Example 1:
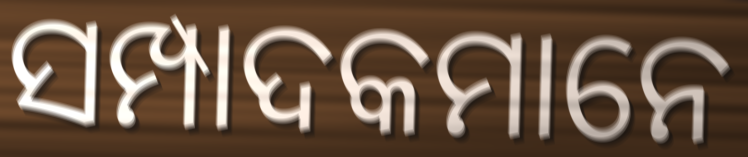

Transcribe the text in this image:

ସମ୍ପାଦକମାନେ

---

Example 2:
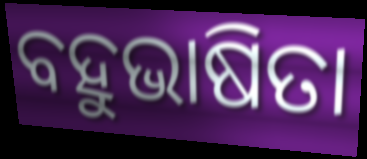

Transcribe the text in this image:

ବହୁଭାଷିତା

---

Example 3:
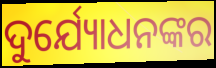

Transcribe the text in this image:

ଦୁର୍ଯ୍ୟୋଧନଙ୍କର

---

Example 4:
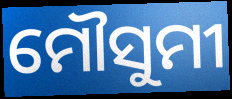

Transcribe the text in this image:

ମୌସୁମୀ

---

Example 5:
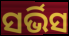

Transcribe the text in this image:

ସର୍ଭିସ